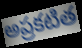
అప్రకటిత